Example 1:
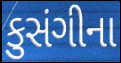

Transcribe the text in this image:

કુસંગીના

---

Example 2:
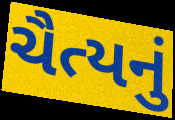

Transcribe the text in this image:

ચૈત્યનું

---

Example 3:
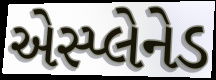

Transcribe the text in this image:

એસ્પ્લેનેડ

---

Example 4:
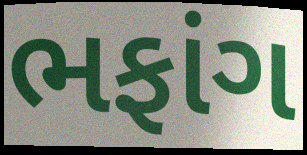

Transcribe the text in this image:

ભફાંગ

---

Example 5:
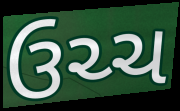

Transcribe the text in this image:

ઉચ્ચ